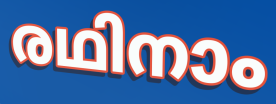
രഥിനാം